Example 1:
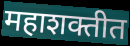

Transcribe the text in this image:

महाशक्तीत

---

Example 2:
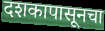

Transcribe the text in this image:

दशकापासूनचा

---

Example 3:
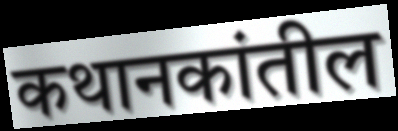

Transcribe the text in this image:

कथानकांतील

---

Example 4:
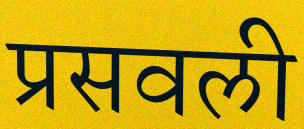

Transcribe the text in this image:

प्रसवली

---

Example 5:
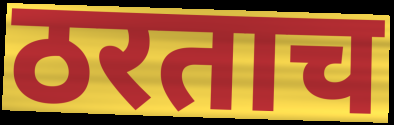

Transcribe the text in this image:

ठरताच